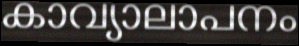
കാവ്യാലാപനം